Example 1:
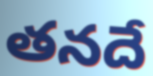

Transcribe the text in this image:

తనదే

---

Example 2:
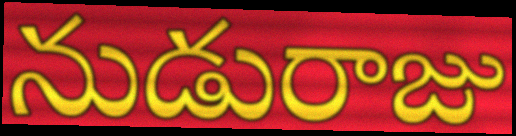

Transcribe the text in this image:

నుడురాజు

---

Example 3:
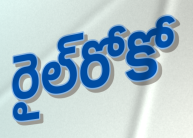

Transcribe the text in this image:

రైల్‌రోకో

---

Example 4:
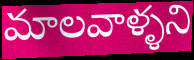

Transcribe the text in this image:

మాలవాళ్ళని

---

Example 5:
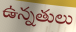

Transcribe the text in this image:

ఉన్నతులు